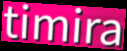
timira